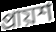
প্রায়শ